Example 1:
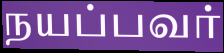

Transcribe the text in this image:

நயப்பவர்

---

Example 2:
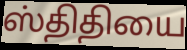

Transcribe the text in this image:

ஸ்திதியை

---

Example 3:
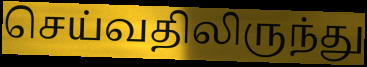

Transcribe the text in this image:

செய்வதிலிருந்து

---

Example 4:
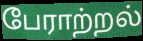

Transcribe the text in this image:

பேராற்றல்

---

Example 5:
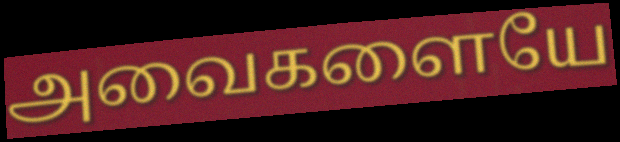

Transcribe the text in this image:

அவைகளையே